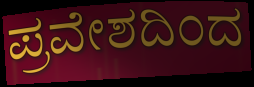
ಪ್ರವೇಶದಿಂದ